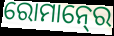
ରୋମାନ୍‍ରେ